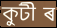
কুটীৰ